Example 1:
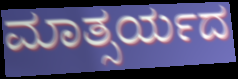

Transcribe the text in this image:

ಮಾತ್ಸರ್ಯದ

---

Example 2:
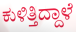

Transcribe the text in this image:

ಕುಳಿತ್ತಿದ್ದಾಳೆ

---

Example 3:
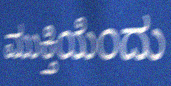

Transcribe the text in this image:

ಮುಕ್ತಿಯೆಂದು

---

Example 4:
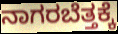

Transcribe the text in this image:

ನಾಗರಬೆತ್ತಕ್ಕೆ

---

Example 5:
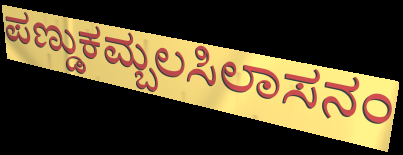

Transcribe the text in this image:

ಪಣ್ಡುಕಮ್ಬಲಸಿಲಾಸನಂ